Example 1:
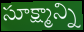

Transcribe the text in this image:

సూక్ష్మాన్ని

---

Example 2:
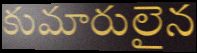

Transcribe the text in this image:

కుమారులైన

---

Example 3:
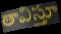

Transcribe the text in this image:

తావిస్తూ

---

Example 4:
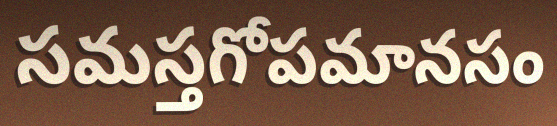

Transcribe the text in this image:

సమస్తగోపమానసం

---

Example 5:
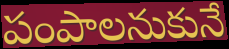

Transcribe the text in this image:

పంపాలనుకునే